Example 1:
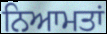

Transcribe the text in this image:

ਨਿਆਮਤਾਂ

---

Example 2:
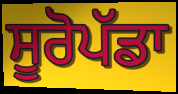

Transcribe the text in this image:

ਸੂਰੋਪੱਡਾ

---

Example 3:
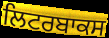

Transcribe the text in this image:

ਲਿਟਰਬਾਕਸ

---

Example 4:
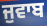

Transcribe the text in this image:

ਜੁਵਾਬ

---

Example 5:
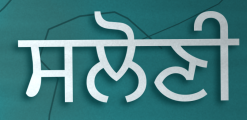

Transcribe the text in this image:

ਸਲੋਣੀ